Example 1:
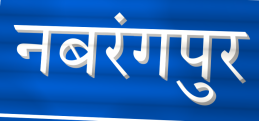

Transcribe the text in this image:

नबरंगपुर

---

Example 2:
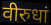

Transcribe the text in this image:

वीरुधां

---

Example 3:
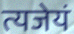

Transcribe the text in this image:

त्यजेयं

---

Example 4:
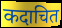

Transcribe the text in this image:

कदाचित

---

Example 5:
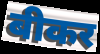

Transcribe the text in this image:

बीकर